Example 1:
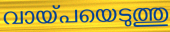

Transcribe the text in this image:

വായ്പയെടുത്തു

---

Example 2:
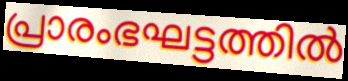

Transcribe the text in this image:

പ്രാരംഭഘട്ടത്തിൽ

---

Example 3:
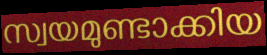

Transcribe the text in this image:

സ്വയമുണ്ടാക്കിയ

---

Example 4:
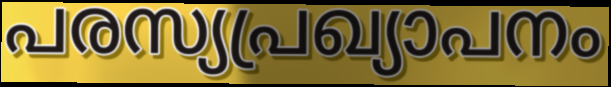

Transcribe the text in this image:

പരസ്യപ്രഖ്യാപനം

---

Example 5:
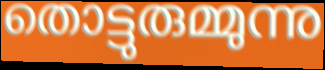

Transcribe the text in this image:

തൊട്ടുരുമ്മുന്നു